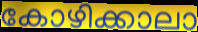
കോഴിക്കാലാ